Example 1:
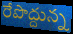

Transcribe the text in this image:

రేపొద్దున్న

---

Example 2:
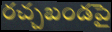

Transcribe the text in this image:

రచ్చబండపై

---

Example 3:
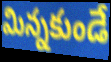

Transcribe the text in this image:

మిన్నకుండే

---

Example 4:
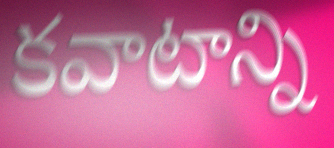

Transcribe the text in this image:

కవాటాన్ని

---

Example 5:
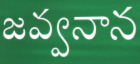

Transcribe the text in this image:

జవ్వనాన